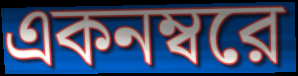
একনম্বরে